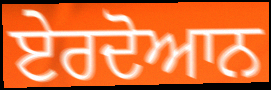
ਏਰਦੋਆਨ